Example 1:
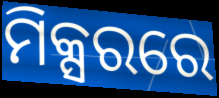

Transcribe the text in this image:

ମିକ୍ସରରେ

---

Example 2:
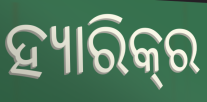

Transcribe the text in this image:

ହ୍ୟାରିକ୍‌ର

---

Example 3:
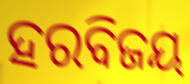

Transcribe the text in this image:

ହରବିଜୟ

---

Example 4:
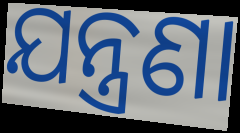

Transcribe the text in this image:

ଯନ୍ତ୍ରଣା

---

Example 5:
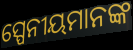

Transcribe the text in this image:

ସ୍ପେନୀୟମାନଙ୍କ